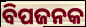
ବିପଜନକ